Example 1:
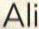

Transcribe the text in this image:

Ali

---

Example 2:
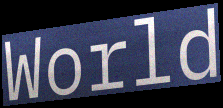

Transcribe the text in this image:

World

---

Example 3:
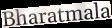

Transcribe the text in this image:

Bharatmala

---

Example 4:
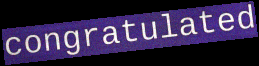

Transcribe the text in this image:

congratulated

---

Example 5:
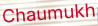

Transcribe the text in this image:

Chaumukh